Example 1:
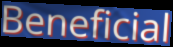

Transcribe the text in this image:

Beneficial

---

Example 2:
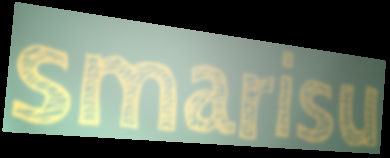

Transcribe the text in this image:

smarisu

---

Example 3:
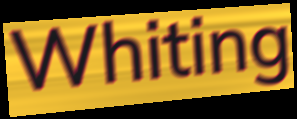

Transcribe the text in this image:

Whiting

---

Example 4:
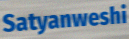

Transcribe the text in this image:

Satyanweshi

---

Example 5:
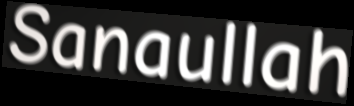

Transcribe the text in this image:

Sanaullah